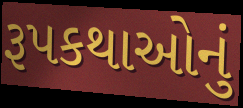
રૂપકથાઓનું